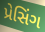
પ્રેસિંગ